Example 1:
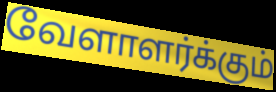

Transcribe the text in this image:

வேளாளர்க்கும்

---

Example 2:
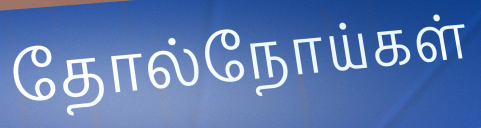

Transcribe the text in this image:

தோல்நோய்கள்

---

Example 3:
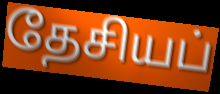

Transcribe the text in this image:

தேசியப்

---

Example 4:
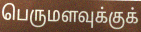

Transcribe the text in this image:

பெருமளவுக்குக்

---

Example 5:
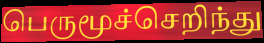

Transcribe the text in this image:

பெருமூச்செறிந்து